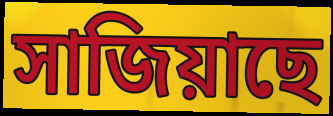
সাজিয়াছে